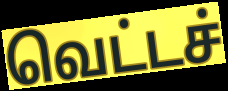
வெட்டச்